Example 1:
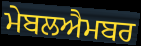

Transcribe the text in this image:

ਮੇਬਲਐਮਬਰ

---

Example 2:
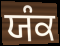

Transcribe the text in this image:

ਯੰਕ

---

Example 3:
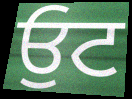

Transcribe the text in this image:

ਓੁਟ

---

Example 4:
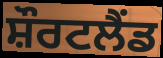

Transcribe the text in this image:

ਸ਼ੌਰਟਲੈਂਡ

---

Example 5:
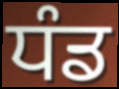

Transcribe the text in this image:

ਧੰਡ